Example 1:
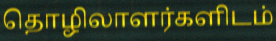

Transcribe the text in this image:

தொழிலாளர்களிடம்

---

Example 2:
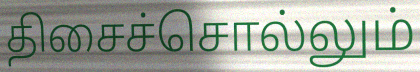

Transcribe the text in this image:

திசைச்சொல்லும்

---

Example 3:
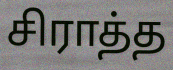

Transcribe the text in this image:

சிராத்த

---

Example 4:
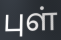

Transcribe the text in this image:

புள்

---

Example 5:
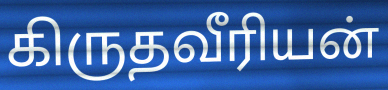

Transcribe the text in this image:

கிருதவீரியன்